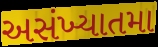
અસંખ્યાતમા